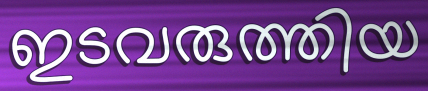
ഇടവരുത്തിയ